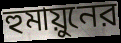
হুমায়ুনের